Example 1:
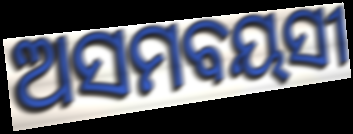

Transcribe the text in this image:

ଅସମବୟସୀ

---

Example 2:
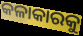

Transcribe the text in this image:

କଳାକାରକୁ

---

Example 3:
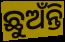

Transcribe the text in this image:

ଛୁଅଁନ୍ତି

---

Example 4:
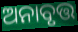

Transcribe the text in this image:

ଅନାବୃତ୍ତ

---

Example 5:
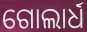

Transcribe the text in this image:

ଗୋଲାର୍ଧ